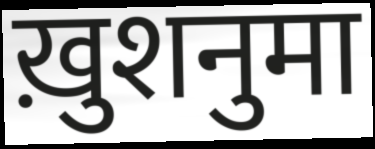
ख़ुशनुमा